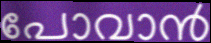
പോവാൻ